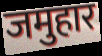
जमुहार